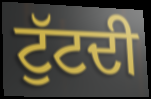
ਟੁੱਟਦੀ